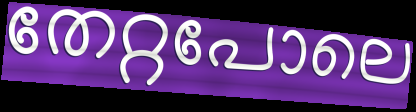
തേറ്റപോലെ